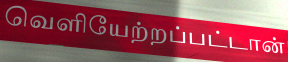
வெளியேற்றப்பட்டான்